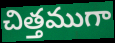
చిత్తముగా